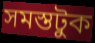
সমস্তটুক